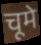
चूमे